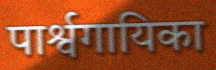
पार्श्वगायिका